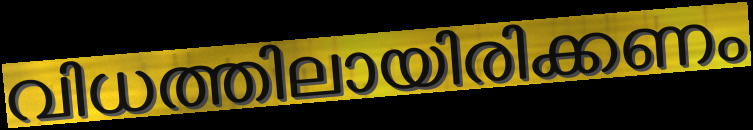
വിധത്തിലായിരിക്കണം